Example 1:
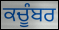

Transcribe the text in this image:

ਕਚੂੰਬਰ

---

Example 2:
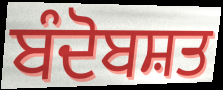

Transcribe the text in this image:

ਬੰਦੋਬਸ਼ਤ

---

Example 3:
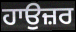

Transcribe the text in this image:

ਹਾਉਜ਼ਰ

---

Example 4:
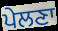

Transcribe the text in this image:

ਪੇਲਣਾ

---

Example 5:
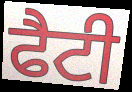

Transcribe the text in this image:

ਫੈਟੀ